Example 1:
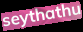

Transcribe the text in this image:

seythathu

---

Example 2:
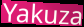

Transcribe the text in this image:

Yakuza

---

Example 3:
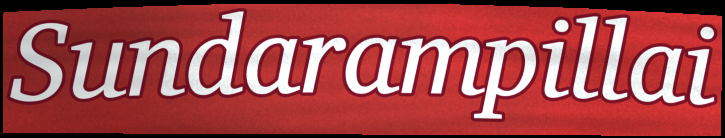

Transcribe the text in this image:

Sundarampillai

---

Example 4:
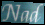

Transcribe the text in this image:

Nad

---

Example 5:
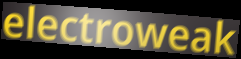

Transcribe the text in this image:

electroweak